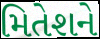
મિતેશને